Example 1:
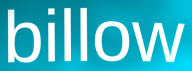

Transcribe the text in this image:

billow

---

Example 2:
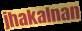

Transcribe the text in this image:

jhakalnan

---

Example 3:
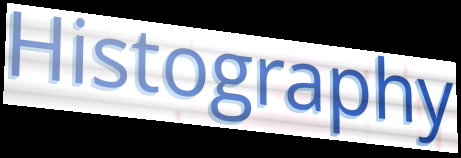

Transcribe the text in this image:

Histography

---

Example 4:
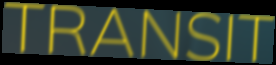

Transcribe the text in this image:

TRANSIT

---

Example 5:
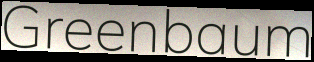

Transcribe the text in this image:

Greenbaum